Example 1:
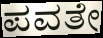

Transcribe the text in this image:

ಪವತೇ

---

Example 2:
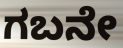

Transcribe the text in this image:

ಗಬನೇ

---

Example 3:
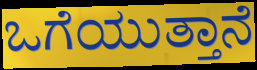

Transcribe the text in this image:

ಒಗೆಯುತ್ತಾನೆ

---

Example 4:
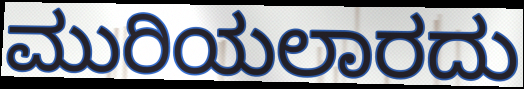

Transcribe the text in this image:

ಮುರಿಯಲಾರದು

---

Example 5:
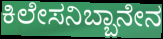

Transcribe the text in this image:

ಕಿಲೇಸನಿಬ್ಬಾನೇನ